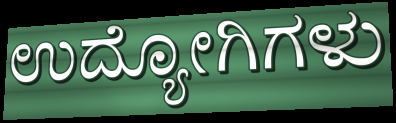
ಉದ್ಯೋಗಿಗಳು